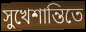
সুখেশান্তিতে